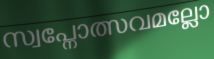
സ്വപ്നോത്സവമല്ലോ